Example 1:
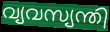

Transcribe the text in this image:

വ്യവസ്യന്തി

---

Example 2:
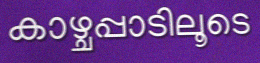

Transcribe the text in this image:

കാഴ്ചപ്പാടിലൂടെ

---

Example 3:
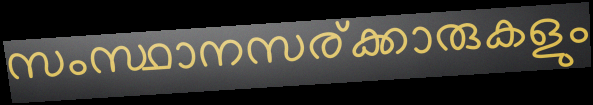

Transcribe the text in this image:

സംസ്ഥാനസര്ക്കാരുകളും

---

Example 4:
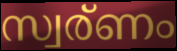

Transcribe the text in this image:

സ്വര്ണം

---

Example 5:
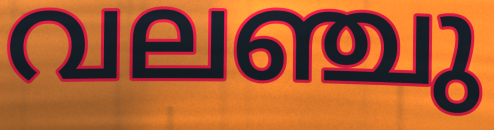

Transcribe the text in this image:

വലഞ്ചു